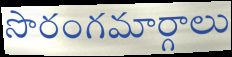
సొరంగమార్గాలు